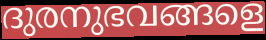
ദുരനുഭവങ്ങളെ